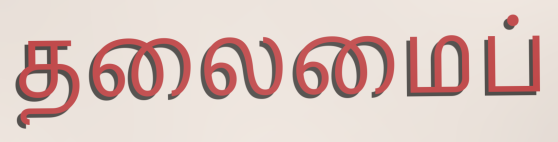
தலைமைப்